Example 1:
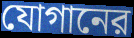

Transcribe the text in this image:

যোগানের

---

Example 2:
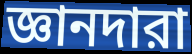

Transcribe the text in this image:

জ্ঞানদারা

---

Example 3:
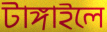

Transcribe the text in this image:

টাঙ্গাইলে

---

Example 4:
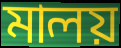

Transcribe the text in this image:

মালয়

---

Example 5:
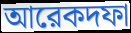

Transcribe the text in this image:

আরেকদফা